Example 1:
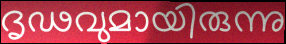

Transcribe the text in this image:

ദൃഢവുമായിരുന്നു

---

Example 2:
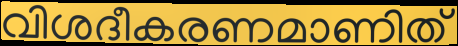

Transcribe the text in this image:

വിശദീകരണമാണിത്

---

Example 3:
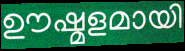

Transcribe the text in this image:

ഊഷ്മളമായി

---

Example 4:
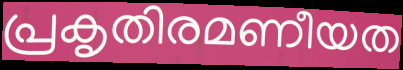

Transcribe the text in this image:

പ്രകൃതിരമണീയത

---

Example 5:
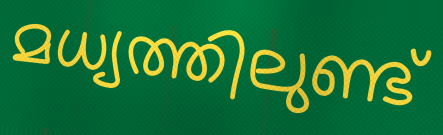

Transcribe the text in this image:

മധ്യത്തിലുണ്ട്